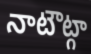
నాటౌట్గా